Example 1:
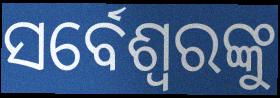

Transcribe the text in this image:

ସର୍ବେଶ୍ୱରଙ୍କୁ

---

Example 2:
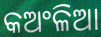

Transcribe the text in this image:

କଅଂଳିଆ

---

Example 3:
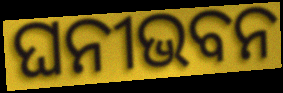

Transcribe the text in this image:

ଘନୀଭବନ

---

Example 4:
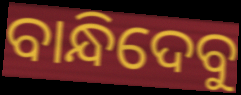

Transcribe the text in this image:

ବାନ୍ଧିଦେବୁ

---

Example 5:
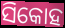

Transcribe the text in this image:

ସିକୋହ